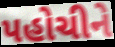
પહોચીને